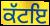
ਕੱਟਇ